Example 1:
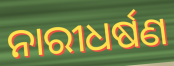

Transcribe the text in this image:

ନାରୀଧର୍ଷଣ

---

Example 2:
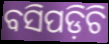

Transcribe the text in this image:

ବସିପଡ଼ିଚି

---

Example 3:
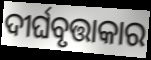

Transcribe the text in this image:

ଦୀର୍ଘବୃତ୍ତାକାର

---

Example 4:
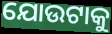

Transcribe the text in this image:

ଯୋଉଟାକୁ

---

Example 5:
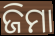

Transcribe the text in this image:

ଜିମା